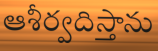
ఆశీర్వదిస్తాను